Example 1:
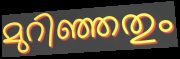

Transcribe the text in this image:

മുറിഞ്ഞതും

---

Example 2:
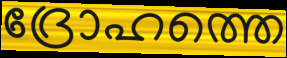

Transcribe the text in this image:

ദ്രോഹത്തെ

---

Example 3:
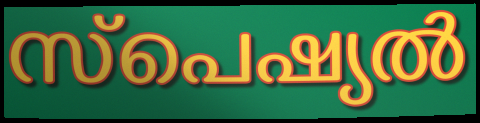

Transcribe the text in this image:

സ്‌പെഷ്യൽ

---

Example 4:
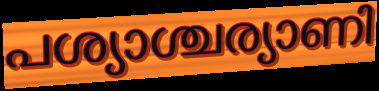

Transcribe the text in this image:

പശ്യാശ്ചര്യാണി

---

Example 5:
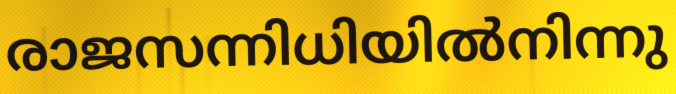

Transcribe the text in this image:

രാജസന്നിധിയിൽനിന്നു